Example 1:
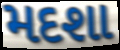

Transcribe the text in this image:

મદશા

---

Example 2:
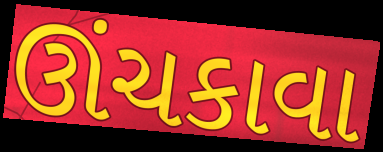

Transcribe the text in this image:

ઊંચકાવા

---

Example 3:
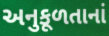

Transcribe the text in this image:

અનુકૂળતાનાં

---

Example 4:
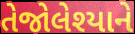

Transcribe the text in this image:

તેજોલેશ્યાને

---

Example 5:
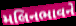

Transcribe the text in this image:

મલિનભાવને